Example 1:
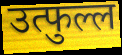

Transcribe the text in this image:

उत्फुल्ल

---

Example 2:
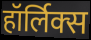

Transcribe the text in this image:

हॉर्लिक्‍स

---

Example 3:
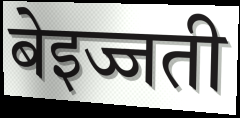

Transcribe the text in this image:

बेइज्‍जती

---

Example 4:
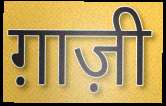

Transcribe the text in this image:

ग़ाज़ी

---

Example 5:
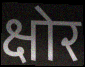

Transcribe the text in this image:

क्षोर